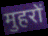
मुहरों